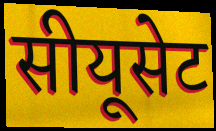
सीयूसेट